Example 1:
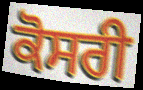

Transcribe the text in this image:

ਕੋਸਰੀ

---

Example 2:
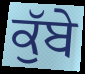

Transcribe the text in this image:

ਕੁੱਬੇ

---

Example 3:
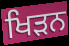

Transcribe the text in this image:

ਖਿੜਨ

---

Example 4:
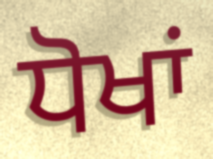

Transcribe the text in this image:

ਧੋਖਾਂ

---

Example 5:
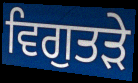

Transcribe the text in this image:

ਵਿਗੁਤੜੇ